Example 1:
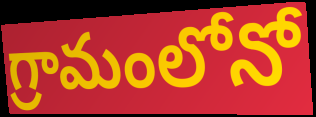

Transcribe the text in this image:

గ్రామంలోనో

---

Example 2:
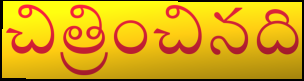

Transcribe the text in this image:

చిత్రించినది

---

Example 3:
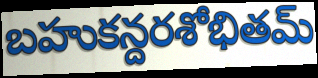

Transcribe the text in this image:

బహుకన్దరశోభితమ్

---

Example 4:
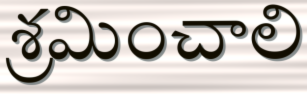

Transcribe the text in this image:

శ్రమించాలి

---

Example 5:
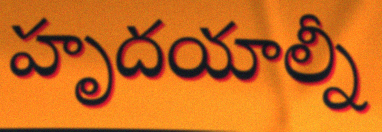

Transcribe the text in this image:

హృదయాల్నీ